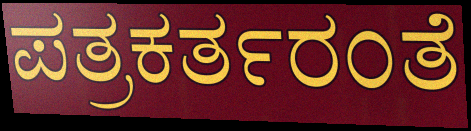
ಪತ್ರಕರ್ತರಂತೆ